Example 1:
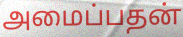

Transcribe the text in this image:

அமைப்பதன்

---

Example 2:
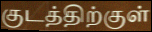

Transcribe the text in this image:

குடத்திற்குள்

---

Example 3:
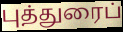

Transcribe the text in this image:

புத்துரைப்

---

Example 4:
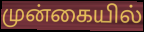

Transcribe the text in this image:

முன்கையில்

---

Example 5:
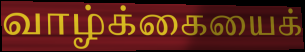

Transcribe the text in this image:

வாழ்க்கையைக்